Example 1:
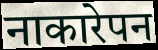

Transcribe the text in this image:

नाकारेपन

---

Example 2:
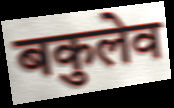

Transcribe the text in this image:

बकुलेव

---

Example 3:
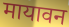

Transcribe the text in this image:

मायावन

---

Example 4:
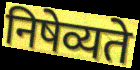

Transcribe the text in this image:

निषेव्यते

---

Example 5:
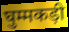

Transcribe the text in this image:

घुम्मकड़ी